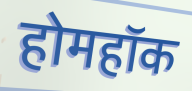
होमहॉक